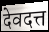
देवदत्त